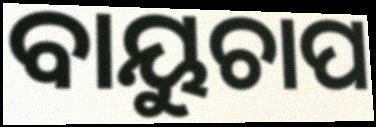
ବାୟୁଚାପ